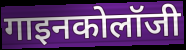
गाइनकोलॉजी